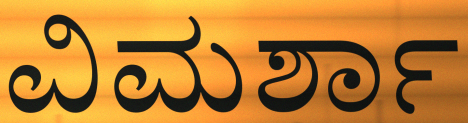
ವಿಮರ್ಶಾ